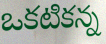
ఒకటికన్న